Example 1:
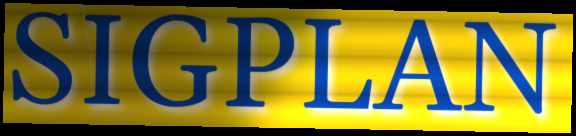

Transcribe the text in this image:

SIGPLAN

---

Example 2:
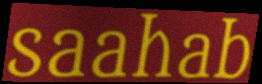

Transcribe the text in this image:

saahab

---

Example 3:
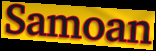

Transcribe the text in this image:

Samoan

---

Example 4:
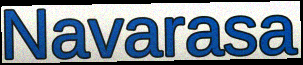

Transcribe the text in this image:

Navarasa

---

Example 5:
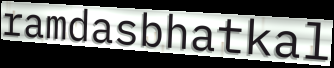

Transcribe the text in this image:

ramdasbhatkal